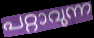
പറ്റാവുന്ന